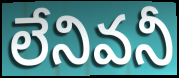
లేనివనీ